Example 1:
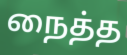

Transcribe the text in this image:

நைத்த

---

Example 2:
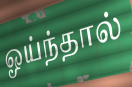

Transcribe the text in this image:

ஓய்ந்தால்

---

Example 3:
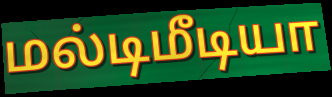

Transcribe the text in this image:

மல்டிமீடியா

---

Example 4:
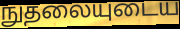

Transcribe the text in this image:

நுதலையுடைய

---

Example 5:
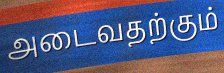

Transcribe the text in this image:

அடைவதற்கும்